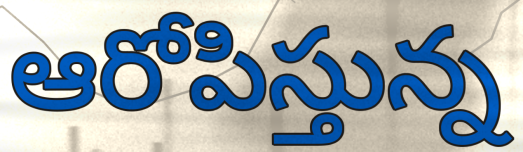
ఆరోపిస్తున్న